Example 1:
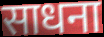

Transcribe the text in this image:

साधना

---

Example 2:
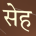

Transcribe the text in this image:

सेह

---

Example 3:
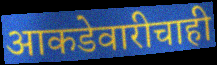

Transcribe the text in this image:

आकडेवारीचाही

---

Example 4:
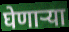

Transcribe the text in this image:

घेणार्‍या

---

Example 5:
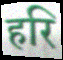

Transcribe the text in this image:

हरि